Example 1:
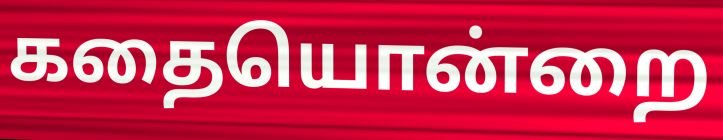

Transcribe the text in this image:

கதையொன்றை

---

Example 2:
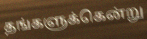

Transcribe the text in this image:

தங்களுக்கென்று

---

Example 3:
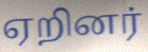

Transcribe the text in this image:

ஏறினர்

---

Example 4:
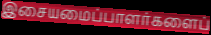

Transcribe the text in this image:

இசையமைப்பாளர்களைப்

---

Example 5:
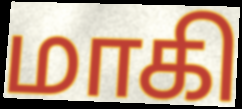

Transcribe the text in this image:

மாகி